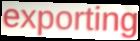
exporting